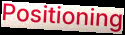
Positioning